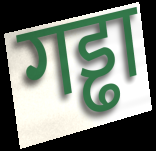
गड्ढा